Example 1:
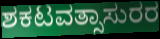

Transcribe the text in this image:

ಶಕಟವತ್ಸಾಸುರರ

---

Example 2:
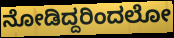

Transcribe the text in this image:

ನೋಡಿದ್ದರಿಂದಲೋ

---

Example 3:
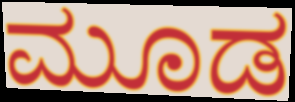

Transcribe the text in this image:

ಮೂಡ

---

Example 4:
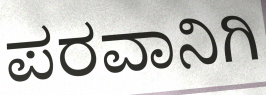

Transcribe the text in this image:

ಪರವಾನಿಗಿ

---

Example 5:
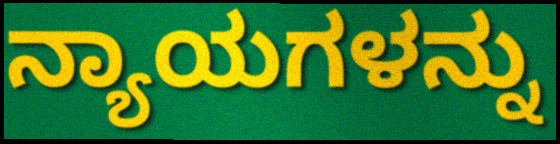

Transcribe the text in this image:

ನ್ಯಾಯಗಳನ್ನು